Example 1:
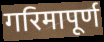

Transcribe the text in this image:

गरिमापूर्ण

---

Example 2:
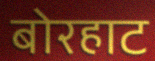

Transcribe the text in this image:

बोरहाट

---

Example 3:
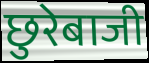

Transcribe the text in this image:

छुरेबाजी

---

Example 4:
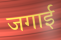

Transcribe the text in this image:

जगाई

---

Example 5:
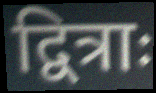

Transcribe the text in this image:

द्वित्राः